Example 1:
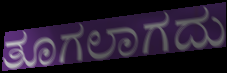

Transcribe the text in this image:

ತೂಗಲಾಗದು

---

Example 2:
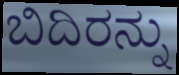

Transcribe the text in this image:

ಬಿದಿರನ್ನು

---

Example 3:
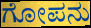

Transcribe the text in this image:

ಗೋಪನು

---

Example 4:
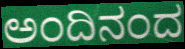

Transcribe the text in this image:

ಅಂದಿನಂದ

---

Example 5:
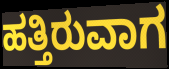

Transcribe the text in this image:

ಹತ್ತಿರುವಾಗ